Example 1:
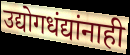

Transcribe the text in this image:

उद्योगधंद्यांनाही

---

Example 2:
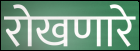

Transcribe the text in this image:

रोखणारे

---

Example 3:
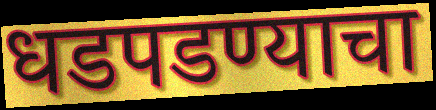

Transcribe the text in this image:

धडपडण्याचा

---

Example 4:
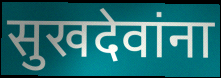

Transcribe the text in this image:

सुखदेवांना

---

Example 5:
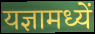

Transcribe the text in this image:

यज्ञामध्यें